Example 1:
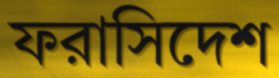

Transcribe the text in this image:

ফরাসিদেশ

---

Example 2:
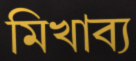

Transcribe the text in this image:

মিখাব্য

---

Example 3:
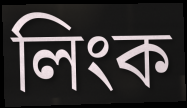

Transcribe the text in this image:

লিংক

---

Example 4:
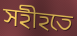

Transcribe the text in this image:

সহীহতে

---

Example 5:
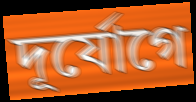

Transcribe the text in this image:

দূর্যোগে